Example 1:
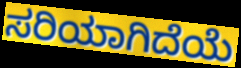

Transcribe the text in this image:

ಸರಿಯಾಗಿದೆಯೆ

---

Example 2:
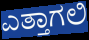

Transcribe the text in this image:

ಎತ್ತಾಗಲಿ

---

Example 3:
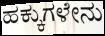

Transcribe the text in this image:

ಹಕ್ಕುಗಳೇನು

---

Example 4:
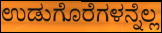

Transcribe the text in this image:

ಉಡುಗೊರೆಗಳನ್ನೆಲ್ಲ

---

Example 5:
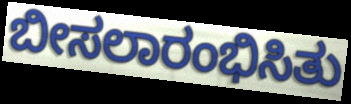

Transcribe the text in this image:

ಬೀಸಲಾರಂಭಿಸಿತು